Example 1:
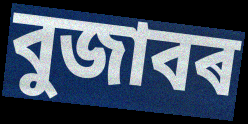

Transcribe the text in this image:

বুজাবৰ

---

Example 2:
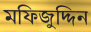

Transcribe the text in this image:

মফিজুদ্দিন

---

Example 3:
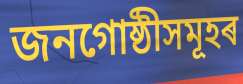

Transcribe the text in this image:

জনগোষ্ঠীসমূহৰ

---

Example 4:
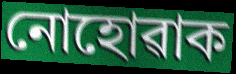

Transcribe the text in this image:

নোহোৱাক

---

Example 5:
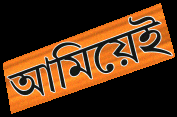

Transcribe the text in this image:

আমিয়েই